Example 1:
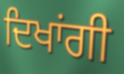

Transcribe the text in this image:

ਦਿਖਾਂਗੀ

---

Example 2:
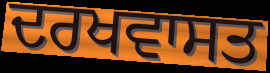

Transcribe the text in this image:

ਦਰਖਵਾਸਤ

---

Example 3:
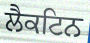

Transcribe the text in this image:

ਲੈਕਟਿਨ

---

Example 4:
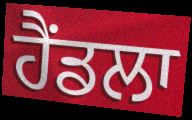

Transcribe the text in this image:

ਹੈਂਡਲਾ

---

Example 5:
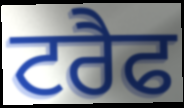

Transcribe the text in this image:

ਟਰੈਫ